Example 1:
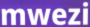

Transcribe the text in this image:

mwezi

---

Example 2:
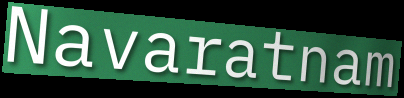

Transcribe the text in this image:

Navaratnam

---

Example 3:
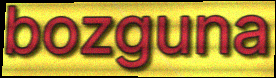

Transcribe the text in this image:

bozguna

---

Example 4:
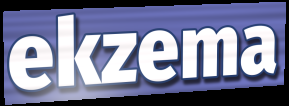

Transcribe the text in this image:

ekzema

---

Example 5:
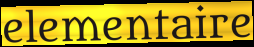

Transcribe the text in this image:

elementaire